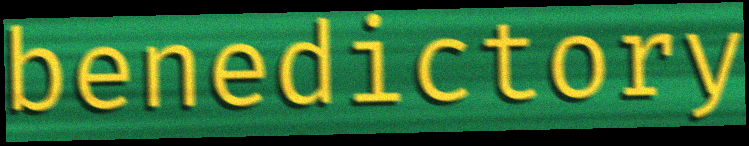
benedictory